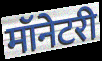
मॉनेटरी